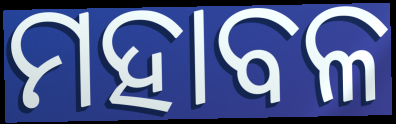
ମହାବଳ